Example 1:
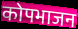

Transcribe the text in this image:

कोपभाजन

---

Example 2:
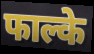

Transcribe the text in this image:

फाल्के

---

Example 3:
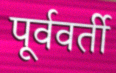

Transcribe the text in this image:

पूर्ववर्ती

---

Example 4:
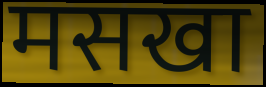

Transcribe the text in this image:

मसखा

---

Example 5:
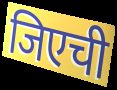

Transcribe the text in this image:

जिएची